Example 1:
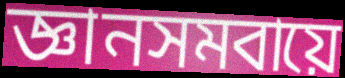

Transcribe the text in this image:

জ্ঞানসমবায়ে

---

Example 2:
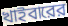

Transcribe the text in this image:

খাইবারের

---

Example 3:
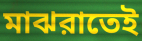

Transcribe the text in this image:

মাঝরাতেই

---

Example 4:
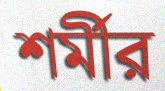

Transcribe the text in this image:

শর্মীর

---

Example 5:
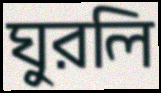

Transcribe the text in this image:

ঘুরলি